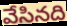
వేసినది